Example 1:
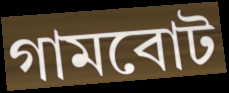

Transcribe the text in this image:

গামবোট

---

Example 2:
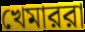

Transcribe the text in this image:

খেমাররা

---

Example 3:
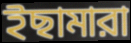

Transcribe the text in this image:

ইছামারা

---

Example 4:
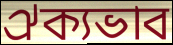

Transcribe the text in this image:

ঐক্যভাব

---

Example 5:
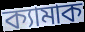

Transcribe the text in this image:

ক্যামাক